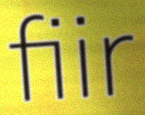
fiir